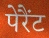
पेरैंट